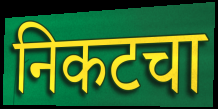
निकटचा